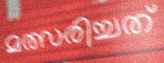
മത്സരിച്ചത്